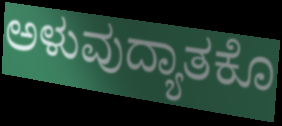
ಅಳುವುದ್ಯಾತಕೊ